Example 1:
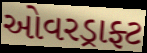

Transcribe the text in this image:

ઓવરડ્રાફ્ટ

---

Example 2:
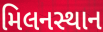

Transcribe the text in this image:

મિલનસ્થાન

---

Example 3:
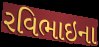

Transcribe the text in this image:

રવિભાઇના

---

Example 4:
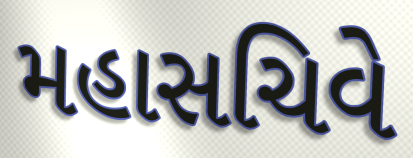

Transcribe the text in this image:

મહાસચિવે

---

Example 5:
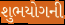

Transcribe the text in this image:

શુભયોગની